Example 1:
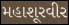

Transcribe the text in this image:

મહાશૂરવીર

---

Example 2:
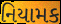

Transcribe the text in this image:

નિયામક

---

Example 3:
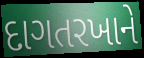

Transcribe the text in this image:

દાગતરખાને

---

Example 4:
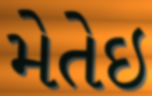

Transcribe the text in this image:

મેતેઇ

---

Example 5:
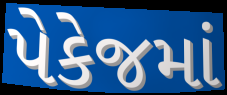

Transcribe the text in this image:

પેકેજમાં